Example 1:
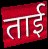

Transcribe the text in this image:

ताई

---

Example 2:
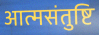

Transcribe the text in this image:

आत्मसंतुष्टि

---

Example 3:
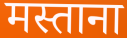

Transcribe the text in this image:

मस्ताना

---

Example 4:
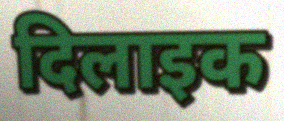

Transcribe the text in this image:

दिलाइक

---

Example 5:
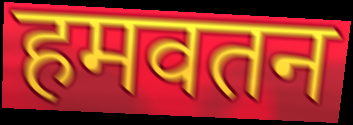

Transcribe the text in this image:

हमवतन